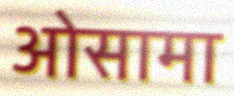
ओसामा